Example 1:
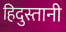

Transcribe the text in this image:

हिदुस्तानी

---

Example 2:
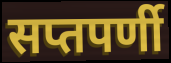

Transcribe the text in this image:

सप्तपर्णी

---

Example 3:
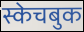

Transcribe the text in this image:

स्केचबुक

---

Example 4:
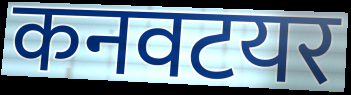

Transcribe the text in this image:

कनवटयर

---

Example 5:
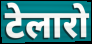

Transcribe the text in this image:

टेलारो